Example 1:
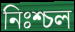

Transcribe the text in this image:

নিঃশ্চল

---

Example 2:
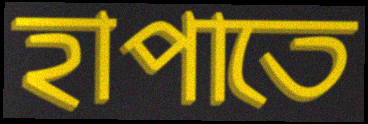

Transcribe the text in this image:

হাপাতে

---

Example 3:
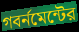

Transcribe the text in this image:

গবর্নমেন্টের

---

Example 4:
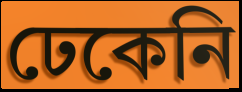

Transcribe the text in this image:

ঢেকেনি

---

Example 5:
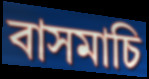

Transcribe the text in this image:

বাসমাচি